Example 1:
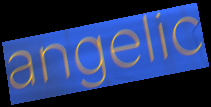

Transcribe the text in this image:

angelic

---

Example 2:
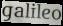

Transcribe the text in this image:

galileo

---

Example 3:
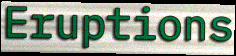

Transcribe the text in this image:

Eruptions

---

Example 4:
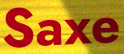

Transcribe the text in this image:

Saxe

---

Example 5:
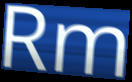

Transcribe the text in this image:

Rm